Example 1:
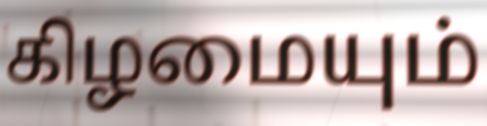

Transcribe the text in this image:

கிழமையும்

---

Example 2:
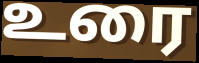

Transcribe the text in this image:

உரை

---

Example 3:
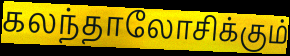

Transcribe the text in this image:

கலந்தாலோசிக்கும்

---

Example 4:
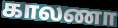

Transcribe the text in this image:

காலணா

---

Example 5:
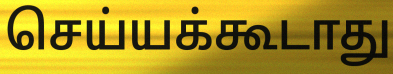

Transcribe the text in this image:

செய்யக்கூடாது